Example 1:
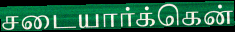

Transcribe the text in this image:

சடையார்க்கென்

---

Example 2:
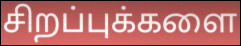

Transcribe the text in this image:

சிறப்புக்களை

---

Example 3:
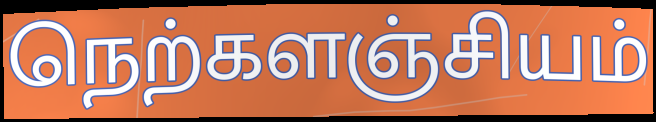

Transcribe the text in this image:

நெற்களஞ்சியம்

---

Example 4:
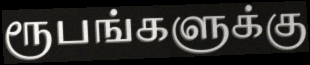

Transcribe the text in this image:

ரூபங்களுக்கு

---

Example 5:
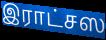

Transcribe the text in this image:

இராட்சஸ